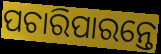
ପଚାରିପାରନ୍ତେ